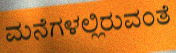
ಮನೆಗಳಲ್ಲಿರುವಂತೆ